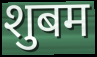
शुबम